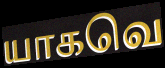
யாகவெ